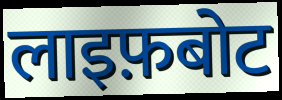
लाइफ़बोट